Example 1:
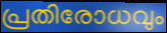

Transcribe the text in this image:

പ്രതിരോധവും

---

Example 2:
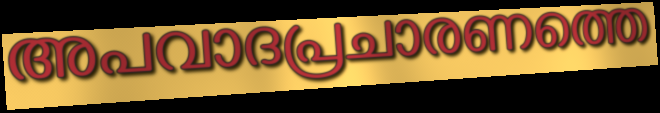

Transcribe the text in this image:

അപവാദപ്രചാരണത്തെ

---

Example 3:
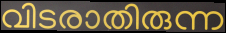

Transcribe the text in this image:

വിടരാതിരുന്ന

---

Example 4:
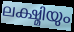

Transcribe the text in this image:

ലക്ഷ്മിയും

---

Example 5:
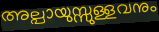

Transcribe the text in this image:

അല്പായുസ്സുള്ളവനും